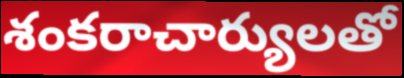
శంకరాచార్యులతో